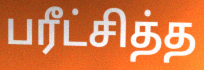
பரீட்சித்த